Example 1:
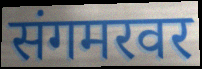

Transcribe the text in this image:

संगमरवर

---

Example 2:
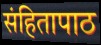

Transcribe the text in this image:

संहितापाठ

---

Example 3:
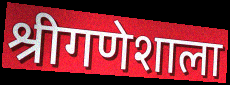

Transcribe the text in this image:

श्रीगणेशाला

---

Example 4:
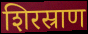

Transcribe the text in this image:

शिरस्राण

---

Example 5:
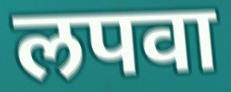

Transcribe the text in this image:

लपवा